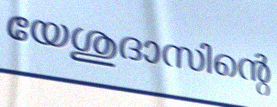
യേശുദാസിന്റെ